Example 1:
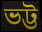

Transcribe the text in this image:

ভট্ট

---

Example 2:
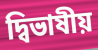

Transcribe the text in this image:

দ্বিভাষীয়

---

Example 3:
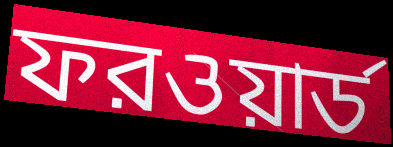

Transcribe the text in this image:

ফরওয়ার্ড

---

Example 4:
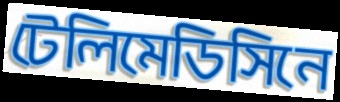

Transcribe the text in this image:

টেলিমেডিসিনে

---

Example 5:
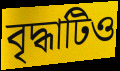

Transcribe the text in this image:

বৃদ্ধাটিও